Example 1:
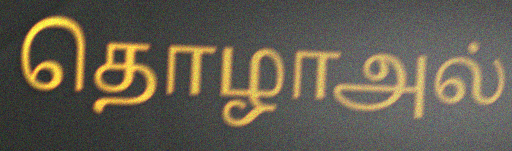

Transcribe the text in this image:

தொழாஅல்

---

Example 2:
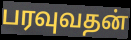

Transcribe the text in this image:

பரவுவதன்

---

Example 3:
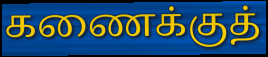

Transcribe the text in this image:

கணைக்குத்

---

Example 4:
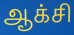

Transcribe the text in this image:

ஆக்சி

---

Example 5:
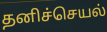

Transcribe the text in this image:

தனிச்செயல்